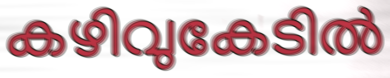
കഴിവുകേടിൽ